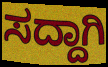
ಸದ್ದಾಗಿ